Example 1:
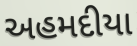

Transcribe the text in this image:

અહમદીયા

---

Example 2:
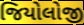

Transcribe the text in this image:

જિયોલોજી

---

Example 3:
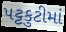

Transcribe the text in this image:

પટ્ટકુટીમાં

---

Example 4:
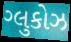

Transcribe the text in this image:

ગ્લુકોઝ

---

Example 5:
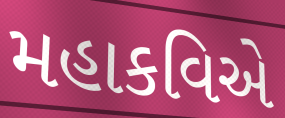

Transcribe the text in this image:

મહાકવિએ